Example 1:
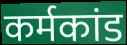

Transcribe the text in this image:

कर्मकांड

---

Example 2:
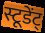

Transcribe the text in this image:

स्टूडेंट्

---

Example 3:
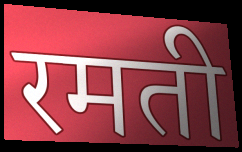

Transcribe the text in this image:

रमती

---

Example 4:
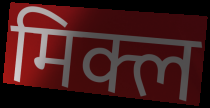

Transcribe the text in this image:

मिक्ल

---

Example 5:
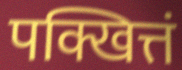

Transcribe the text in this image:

पक्खित्तं